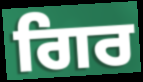
ਗਿਰ